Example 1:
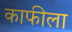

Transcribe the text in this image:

काफीला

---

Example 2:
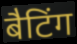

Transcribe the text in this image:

बैटिंग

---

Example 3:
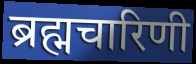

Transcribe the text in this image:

ब्रह्मचारिणी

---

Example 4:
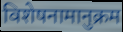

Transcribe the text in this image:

विशेषनामानुक्रम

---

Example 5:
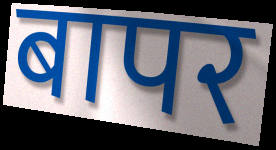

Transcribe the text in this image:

बापर